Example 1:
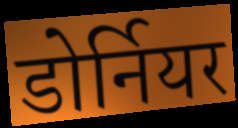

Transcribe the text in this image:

डोर्नियर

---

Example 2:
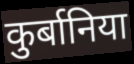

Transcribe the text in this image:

कुर्बानिया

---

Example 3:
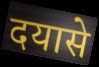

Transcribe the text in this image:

दयासे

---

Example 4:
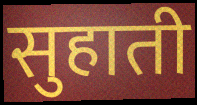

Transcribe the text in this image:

सुहाती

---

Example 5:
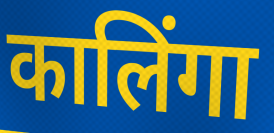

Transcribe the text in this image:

कालिंगा